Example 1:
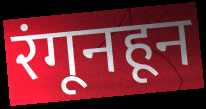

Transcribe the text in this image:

रंगूनहून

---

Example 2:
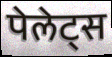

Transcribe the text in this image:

पेलेट्स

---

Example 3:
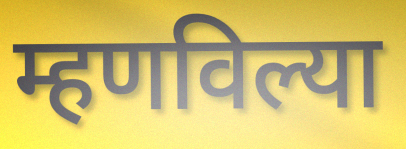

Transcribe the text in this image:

म्हणविल्या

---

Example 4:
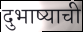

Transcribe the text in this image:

दुभाष्याची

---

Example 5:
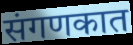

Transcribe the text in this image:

संगणकात